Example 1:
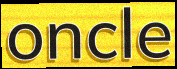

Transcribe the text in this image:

oncle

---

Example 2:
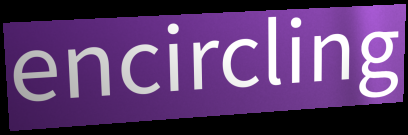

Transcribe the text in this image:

encircling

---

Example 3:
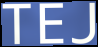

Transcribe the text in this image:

TEJ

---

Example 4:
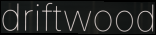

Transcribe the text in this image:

driftwood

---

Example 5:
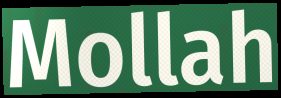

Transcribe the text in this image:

Mollah